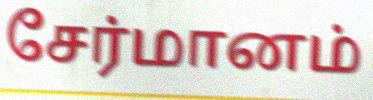
சேர்மானம்